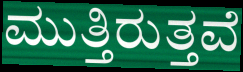
ಮುತ್ತಿರುತ್ತವೆ